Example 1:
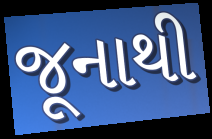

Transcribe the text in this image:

જૂનાથી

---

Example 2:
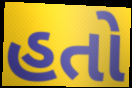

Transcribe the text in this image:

હતો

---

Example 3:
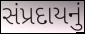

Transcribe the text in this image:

સંપ્રદાયનું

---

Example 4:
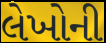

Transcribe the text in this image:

લેખોની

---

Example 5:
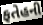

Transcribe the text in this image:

ફતેહની